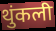
थुंकली